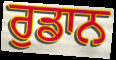
ਰੁਡਾਨ